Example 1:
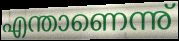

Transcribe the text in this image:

എന്താണെന്നു്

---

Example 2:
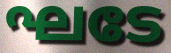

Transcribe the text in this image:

ഘടേ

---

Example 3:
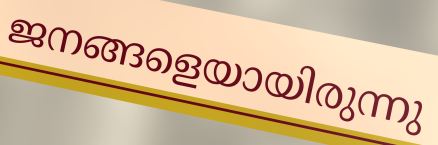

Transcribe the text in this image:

ജനങ്ങളെയായിരുന്നു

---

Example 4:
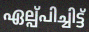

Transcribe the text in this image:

ഏല്പ്പിച്ചിട്ട്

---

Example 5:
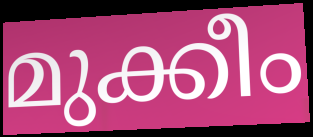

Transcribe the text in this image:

മുക്കീം